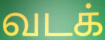
வடக்